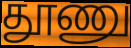
தூணு